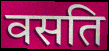
वसति